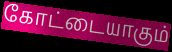
கோட்டையாகும்